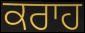
ਕਰਾਹ